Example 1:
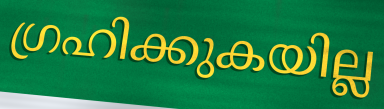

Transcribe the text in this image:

ഗ്രഹിക്കുകയില്ല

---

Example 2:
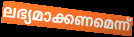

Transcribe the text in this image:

ലഭ്യമാക്കണമെന്ന്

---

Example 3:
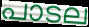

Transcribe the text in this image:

പാടല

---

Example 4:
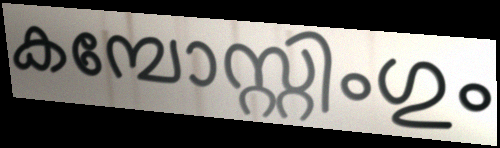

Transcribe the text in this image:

കമ്പോസ്റ്റിംഗും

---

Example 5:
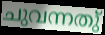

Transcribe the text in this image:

ചുവന്നതു്